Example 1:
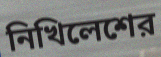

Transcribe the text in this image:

নিখিলেশের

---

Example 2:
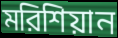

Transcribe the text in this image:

মরিশিয়ান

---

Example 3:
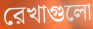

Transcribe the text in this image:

রেখাগুলো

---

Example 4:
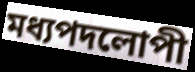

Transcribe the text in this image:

মধ্যপদলোপী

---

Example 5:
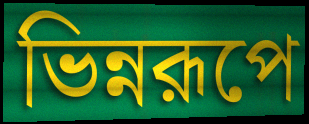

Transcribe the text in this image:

ভিন্নরূপে